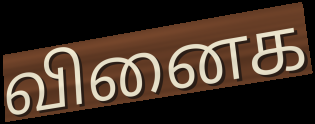
வினைக